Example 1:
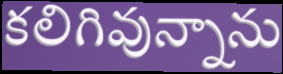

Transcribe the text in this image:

కలిగివున్నాను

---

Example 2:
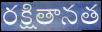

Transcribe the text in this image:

రక్షితానత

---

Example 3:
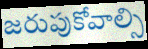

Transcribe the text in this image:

జరుపుకోవాల్సి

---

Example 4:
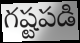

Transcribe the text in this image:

గష్టపడి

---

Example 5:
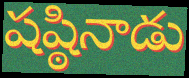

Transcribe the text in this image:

షష్ఠినాడు